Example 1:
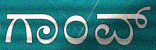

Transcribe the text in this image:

ಗಾಂವ್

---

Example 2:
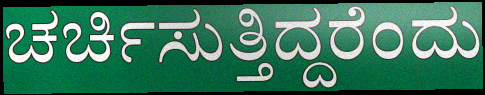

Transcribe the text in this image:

ಚರ್ಚಿಸುತ್ತಿದ್ದರೆಂದು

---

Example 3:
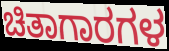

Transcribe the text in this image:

ಚಿತಾಗಾರಗಳ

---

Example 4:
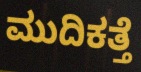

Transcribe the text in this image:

ಮುದಿಕತ್ತೆ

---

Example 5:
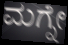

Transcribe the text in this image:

ಮಗ್ನೇ